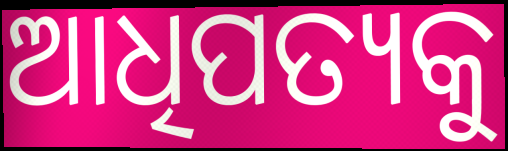
ଆଧିପତ୍ୟକୁ